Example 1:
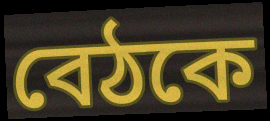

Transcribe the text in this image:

বেঠকে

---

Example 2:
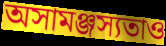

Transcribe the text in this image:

অসামঞ্জস্যতাও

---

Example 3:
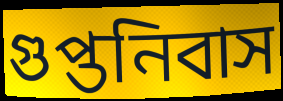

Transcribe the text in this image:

গুপ্তনিবাস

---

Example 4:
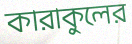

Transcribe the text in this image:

কারাকুলের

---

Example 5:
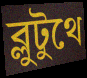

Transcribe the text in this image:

ব্লুটুথে